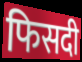
फिसदी